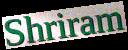
Shriram